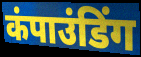
कंपाउंडिंग